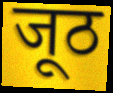
जूठ